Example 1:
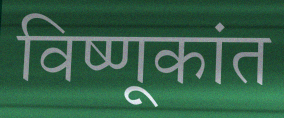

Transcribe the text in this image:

विष्णूकांत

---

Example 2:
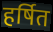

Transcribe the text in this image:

हर्षित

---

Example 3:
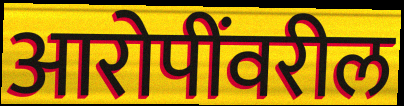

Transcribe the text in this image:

आरोपींवरील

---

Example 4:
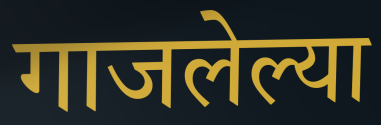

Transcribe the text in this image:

गाजलेल्या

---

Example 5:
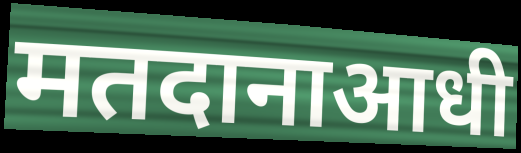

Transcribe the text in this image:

मतदानाआधी